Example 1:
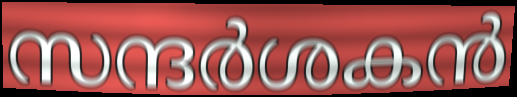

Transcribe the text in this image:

സന്ദർശകൻ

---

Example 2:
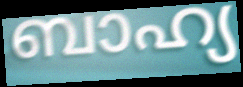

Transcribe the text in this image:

ബാഹ്യ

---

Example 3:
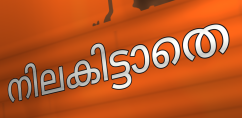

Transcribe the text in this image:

നിലകിട്ടാതെ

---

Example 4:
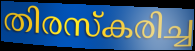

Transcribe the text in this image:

തിരസ്കരിച്ച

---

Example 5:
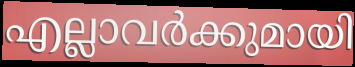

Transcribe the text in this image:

എല്ലാവർക്കുമായി